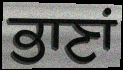
ਭਾਣਾਂ